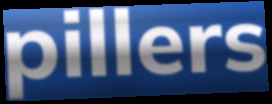
pillers